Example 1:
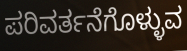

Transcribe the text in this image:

ಪರಿವರ್ತನೆಗೊಳ್ಳುವ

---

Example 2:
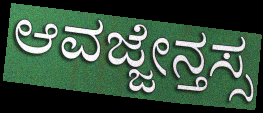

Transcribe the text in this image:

ಆವಜ್ಜೇನ್ತಸ್ಸ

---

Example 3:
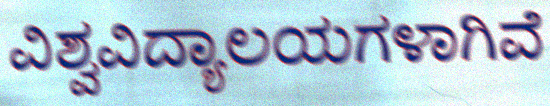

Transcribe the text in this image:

ವಿಶ್ವವಿದ್ಯಾಲಯಗಳಾಗಿವೆ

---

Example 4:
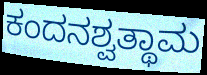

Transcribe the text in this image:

ಕಂದನಶ್ವತ್ಥಾಮ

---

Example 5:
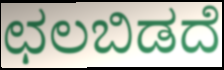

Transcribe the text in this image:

ಛಲಬಿಡದೆ